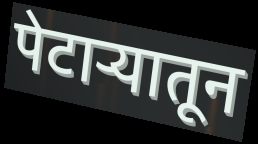
पेटाऱ्यातून